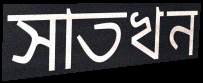
সাতখন